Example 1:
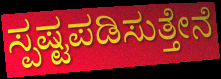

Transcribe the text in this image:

ಸ್ಪಷ್ಟಪಡಿಸುತ್ತೇನೆ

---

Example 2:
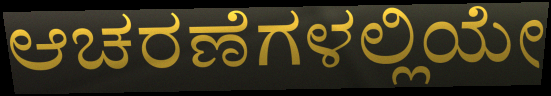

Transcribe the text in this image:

ಆಚರಣೆಗಳಲ್ಲಿಯೇ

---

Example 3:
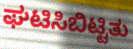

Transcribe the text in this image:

ಘಟಿಸಿಬಿಟ್ಟಿತು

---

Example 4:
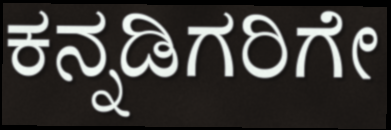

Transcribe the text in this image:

ಕನ್ನಡಿಗರಿಗೇ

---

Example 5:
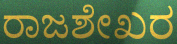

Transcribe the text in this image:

ರಾಜಶೇಖರ